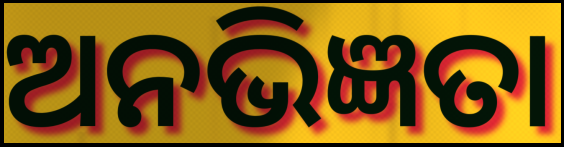
ଅନଭିଜ୍ଞତା